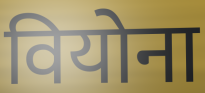
वियोना